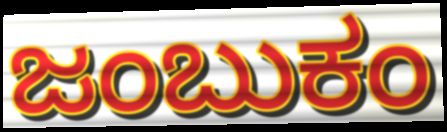
ಜಂಬುಕಂ